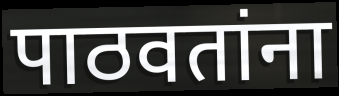
पाठवतांना